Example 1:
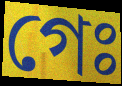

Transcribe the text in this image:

গেঃ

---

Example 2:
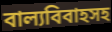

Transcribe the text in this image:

বাল্যবিবাহসহ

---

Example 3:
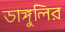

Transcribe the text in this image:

ডাঙ্গুলির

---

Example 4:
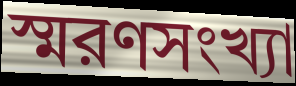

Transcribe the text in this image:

স্মরণসংখ্যা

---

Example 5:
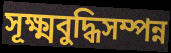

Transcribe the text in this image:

সূক্ষ্মবুদ্ধিসম্পন্ন